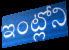
ఇంట్లోని